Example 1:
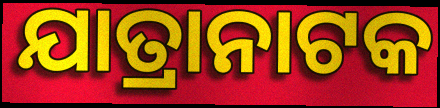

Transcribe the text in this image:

ଯାତ୍ରାନାଟକ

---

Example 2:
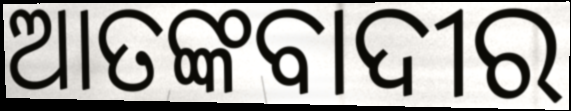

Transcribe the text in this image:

ଆତଙ୍କବାଦୀର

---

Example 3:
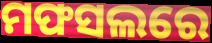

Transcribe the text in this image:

ମଫସଲରେ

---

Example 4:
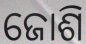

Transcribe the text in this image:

ଜୋଶି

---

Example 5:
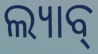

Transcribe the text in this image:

ଲ୍ୟାବ୍